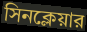
সিনক্লেয়ার